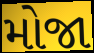
મોજા